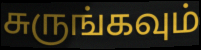
சுருங்கவும்